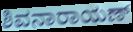
ಶಿವನಾರಾಯಣ್